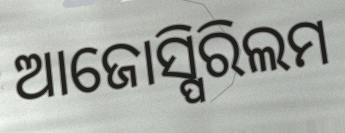
ଆଜୋସ୍ପିରିଲମ